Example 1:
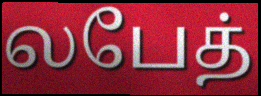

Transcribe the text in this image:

லபேத்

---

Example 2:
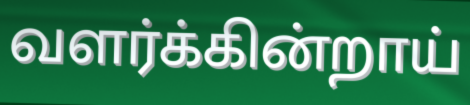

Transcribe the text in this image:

வளர்க்கின்றாய்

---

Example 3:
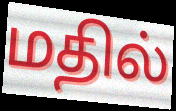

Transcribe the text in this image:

மதில்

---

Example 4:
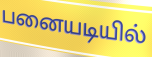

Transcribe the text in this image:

பனையடியில்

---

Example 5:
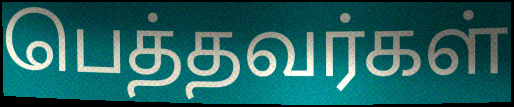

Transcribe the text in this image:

பெத்தவர்கள்